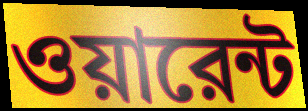
ওয়ারেন্ট